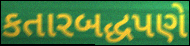
કતારબદ્ધપણે